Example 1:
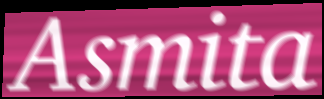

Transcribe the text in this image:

Asmita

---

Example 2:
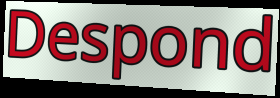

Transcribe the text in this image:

Despond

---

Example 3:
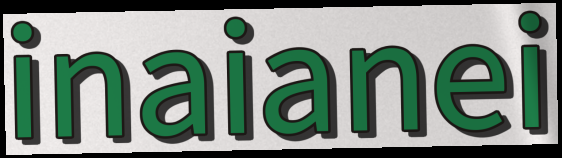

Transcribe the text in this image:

inaianei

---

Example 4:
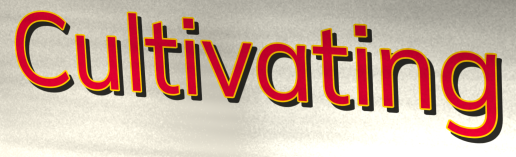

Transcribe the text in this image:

Cultivating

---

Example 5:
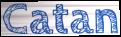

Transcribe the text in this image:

Catan